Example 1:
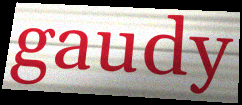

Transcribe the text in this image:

gaudy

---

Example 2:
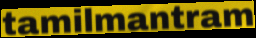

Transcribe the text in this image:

tamilmantram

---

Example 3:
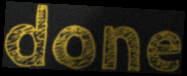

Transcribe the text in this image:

done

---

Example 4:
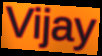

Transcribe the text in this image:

Vijay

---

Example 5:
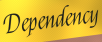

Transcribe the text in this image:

Dependency